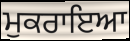
ਮੁਕਰਾਇਆ